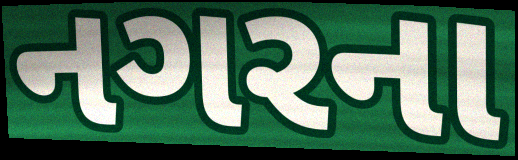
નગરના